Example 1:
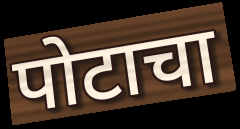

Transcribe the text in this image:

पोटाचा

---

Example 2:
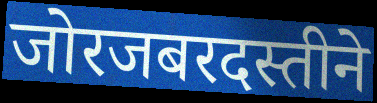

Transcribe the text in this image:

जोरजबरदस्तीने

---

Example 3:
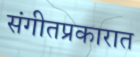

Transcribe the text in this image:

संगीतप्रकारात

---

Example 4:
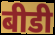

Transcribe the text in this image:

बीडी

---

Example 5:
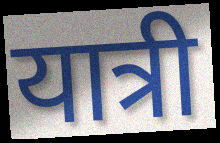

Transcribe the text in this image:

यात्री